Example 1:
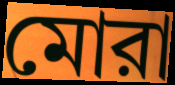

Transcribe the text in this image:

মোরা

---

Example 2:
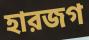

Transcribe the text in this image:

হারজগ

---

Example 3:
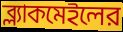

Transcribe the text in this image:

ব্ল্যাকমেইলের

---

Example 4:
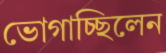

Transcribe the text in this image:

ভোগাচ্ছিলেন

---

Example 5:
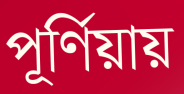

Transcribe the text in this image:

পূর্ণিয়ায়